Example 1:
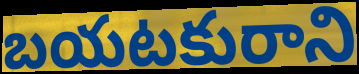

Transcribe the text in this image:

బయటకురాని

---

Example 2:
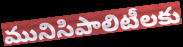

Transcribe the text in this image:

మునిసిపాలిటీలకు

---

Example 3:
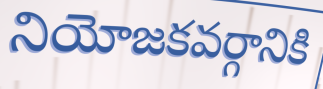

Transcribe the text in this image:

నియోజకవర్గానికి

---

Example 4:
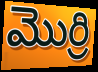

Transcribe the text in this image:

మొర్రి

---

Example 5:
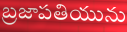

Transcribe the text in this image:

బ్రజాపతియును